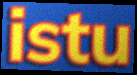
istu